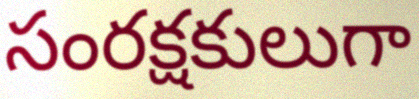
సంరక్షకులుగా